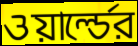
ওয়ার্ল্ডের